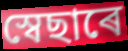
স্বেছাৰে